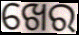
ଖେର